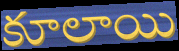
కూలాయి